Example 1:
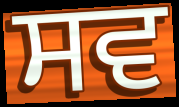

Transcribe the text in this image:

ਸਵ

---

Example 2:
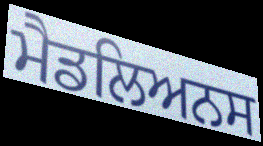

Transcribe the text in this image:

ਮੈਡਲਿਅਨਸ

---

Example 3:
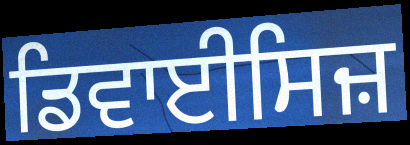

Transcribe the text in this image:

ਡਿਵਾਈਸਿਜ਼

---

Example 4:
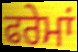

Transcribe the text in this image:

ਫਰੇਮਾਂ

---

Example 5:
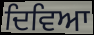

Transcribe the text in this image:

ਦਿਵਿਆ